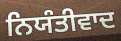
ਨਿਯੰਤੀਵਾਦ